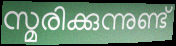
സ്മരിക്കുന്നുണ്ട്